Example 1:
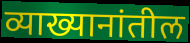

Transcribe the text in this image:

व्याख्यानांतील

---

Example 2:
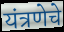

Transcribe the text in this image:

यंत्रणेचे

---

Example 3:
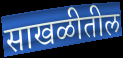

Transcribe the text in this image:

साखळीतील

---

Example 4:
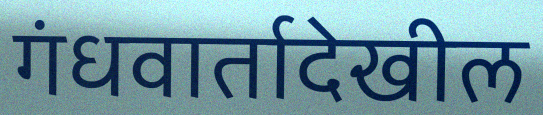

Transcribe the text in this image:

गंधवार्तादेखील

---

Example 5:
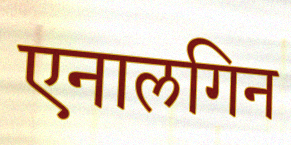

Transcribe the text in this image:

एनालगिन